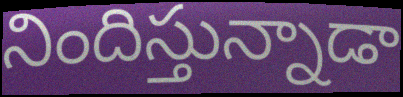
నిందిస్తున్నాడా